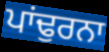
ਪਾਂਢੁਰਨਾ